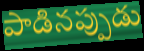
పాడినప్పుడు